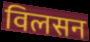
विलसन